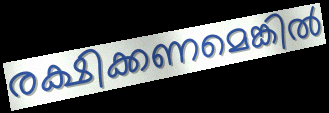
രക്ഷിക്കണമെങ്കിൽ